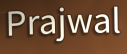
Prajwal